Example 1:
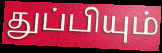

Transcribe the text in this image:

துப்பியும்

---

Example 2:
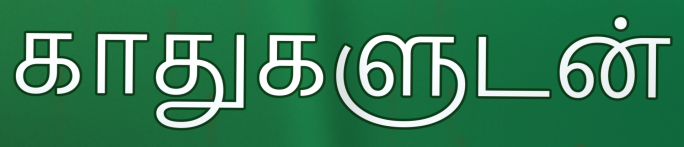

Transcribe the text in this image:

காதுகளுடன்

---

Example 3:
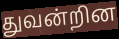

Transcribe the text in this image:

துவன்றின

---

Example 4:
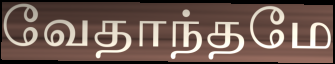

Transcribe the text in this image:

வேதாந்தமே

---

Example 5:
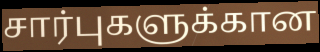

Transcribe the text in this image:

சார்புகளுக்கான